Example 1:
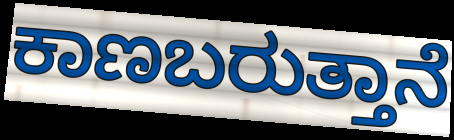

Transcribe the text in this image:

ಕಾಣಬರುತ್ತಾನೆ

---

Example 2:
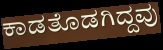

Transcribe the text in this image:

ಕಾಡತೊಡಗಿದ್ದವು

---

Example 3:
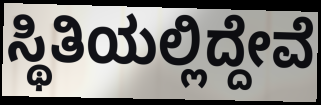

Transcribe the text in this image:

ಸ್ಥಿತಿಯಲ್ಲಿದ್ದೇವೆ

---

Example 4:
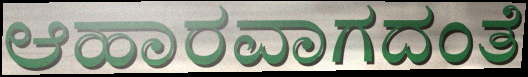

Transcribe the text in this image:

ಆಹಾರವಾಗದಂತೆ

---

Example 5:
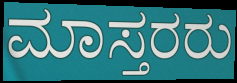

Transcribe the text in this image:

ಮಾಸ್ತರರು